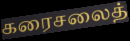
கரைசலைத்